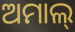
ଅମାଲ୍